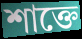
শাক্তে